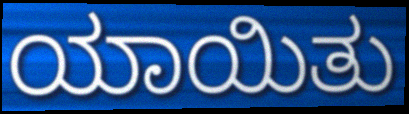
ಯಾಯಿತು